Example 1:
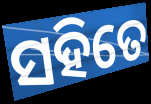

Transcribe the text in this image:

ସହିତେ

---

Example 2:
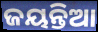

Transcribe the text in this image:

ଜୟନ୍ତିଆ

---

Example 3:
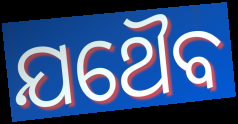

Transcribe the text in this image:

ଯଥୈବ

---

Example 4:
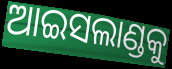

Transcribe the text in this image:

ଆଇସଲାଣ୍ଡକୁ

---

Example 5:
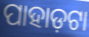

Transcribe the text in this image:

ପାହାଡ଼ଟା